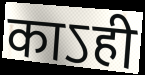
काऽही